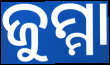
ଜୁମ୍ମା